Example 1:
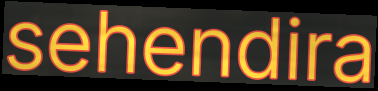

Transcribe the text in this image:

sehendira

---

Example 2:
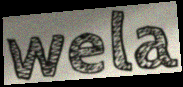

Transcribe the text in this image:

wela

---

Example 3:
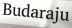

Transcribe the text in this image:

Budaraju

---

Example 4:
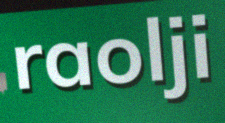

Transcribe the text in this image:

raolji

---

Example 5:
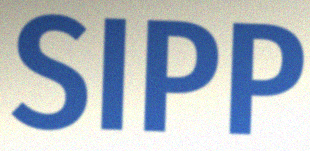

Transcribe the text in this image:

SIPP